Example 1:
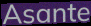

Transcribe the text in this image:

Asante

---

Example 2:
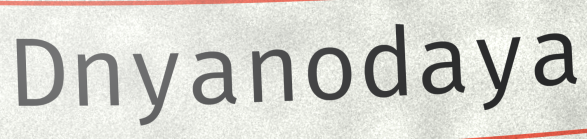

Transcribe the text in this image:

Dnyanodaya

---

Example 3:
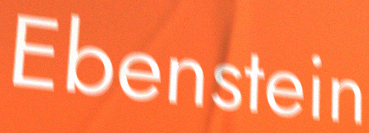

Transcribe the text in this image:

Ebenstein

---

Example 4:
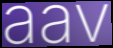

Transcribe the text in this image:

aav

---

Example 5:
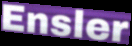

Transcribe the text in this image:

Ensler